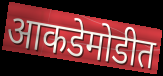
आकडेमोडीत